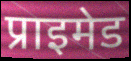
प्राइमेड